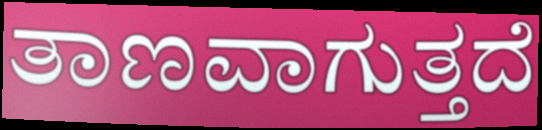
ತಾಣವಾಗುತ್ತದೆ